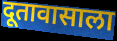
दूतावासाला